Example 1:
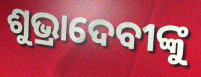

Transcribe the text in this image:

ଶୁଭ୍ରାଦେବୀଙ୍କୁ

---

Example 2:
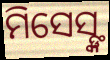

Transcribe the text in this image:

ମିସେସ୍ଙ୍କ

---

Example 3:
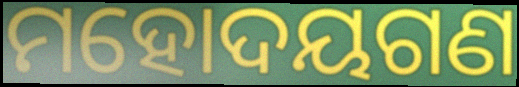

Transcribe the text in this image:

ମହୋଦୟଗଣ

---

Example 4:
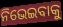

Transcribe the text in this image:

ନିଭେଇବାକୁ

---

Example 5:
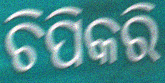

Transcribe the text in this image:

ଚିପିକରି